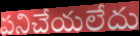
పనిచేయలేదు